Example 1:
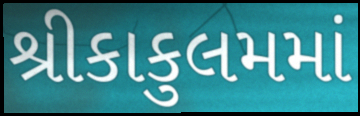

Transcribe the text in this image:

શ્રીકાકુલમમાં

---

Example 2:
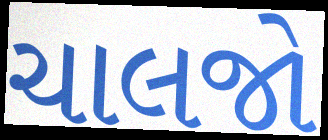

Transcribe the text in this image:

ચાલજો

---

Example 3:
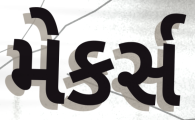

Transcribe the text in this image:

મેકર્સ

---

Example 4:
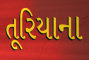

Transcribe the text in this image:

તૂરિયાના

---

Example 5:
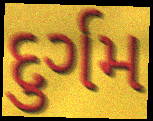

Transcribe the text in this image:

દુર્ગમ